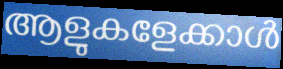
ആളുകളേക്കാൾ